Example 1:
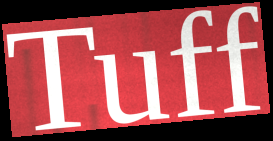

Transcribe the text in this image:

Tuff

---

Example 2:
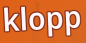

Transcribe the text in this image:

klopp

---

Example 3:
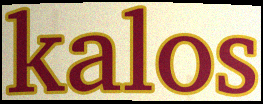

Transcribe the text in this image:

kalos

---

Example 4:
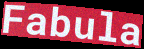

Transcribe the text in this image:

Fabula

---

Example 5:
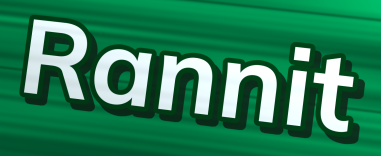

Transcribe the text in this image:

Rannit